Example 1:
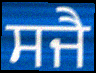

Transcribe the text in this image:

ਸਜੈ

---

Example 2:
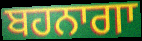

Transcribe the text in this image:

ਬਹਨਾਗਾ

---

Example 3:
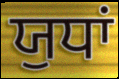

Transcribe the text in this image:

ਯੁਧਾਂ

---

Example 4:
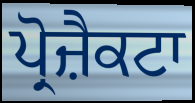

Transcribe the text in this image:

ਪ੍ਰੋਜ਼ੈਕਟਾ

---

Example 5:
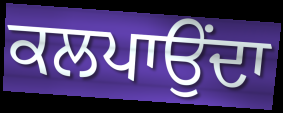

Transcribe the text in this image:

ਕਲਪਾਉਂਦਾ